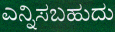
ಎನ್ನಿಸಬಹುದು